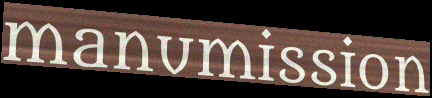
manumission